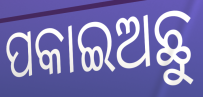
ପକାଇଅଛୁ